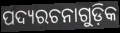
ପଦ୍ୟରଚନାଗୁଡ଼ିକ